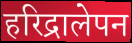
हरिद्रालेपन